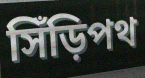
সিঁড়িপথ